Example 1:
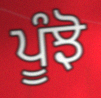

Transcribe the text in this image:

ਪੂੰਝੋ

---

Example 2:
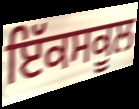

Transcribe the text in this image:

ਇੱਕਸਕੂਲ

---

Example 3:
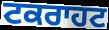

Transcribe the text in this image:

ਟਕਰਾਹਟ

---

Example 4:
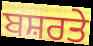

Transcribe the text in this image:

ਬਸ਼ਰਤੇ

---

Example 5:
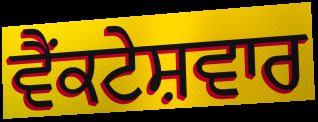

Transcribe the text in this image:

ਵੈਂਕਟੇਸ਼ਵਾਰ